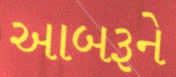
આબરૂને